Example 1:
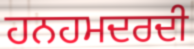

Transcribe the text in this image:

ਹਨਹਮਦਰਦੀ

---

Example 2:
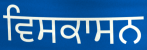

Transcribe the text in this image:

ਵਿਸਕਾਸਨ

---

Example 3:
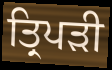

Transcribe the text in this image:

ਤ੍ਰਿਪਡ਼ੀ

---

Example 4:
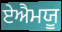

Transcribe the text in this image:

ਏਐਮਯੂ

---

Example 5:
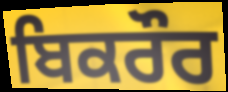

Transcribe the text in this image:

ਬਿਕਰੌਰ